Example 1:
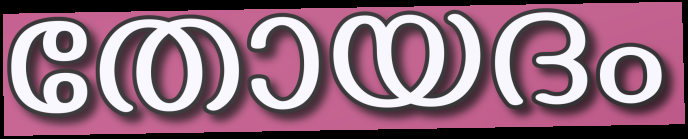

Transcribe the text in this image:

തോയദം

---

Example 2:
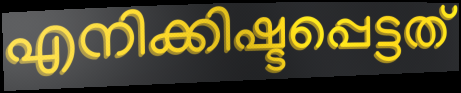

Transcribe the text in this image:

എനിക്കിഷ്ടപ്പെട്ടത്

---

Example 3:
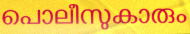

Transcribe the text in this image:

പൊലീസുകാരും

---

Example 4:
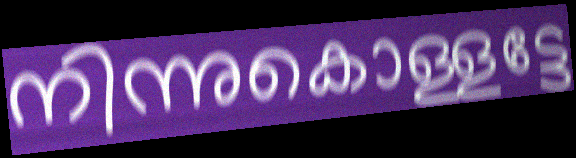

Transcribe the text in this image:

നിന്നുകൊള്ളട്ടേ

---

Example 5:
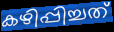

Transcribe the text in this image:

കഴിപ്പിച്ചത്